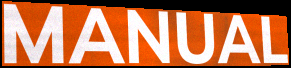
MANUAL